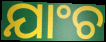
ଯାଂଚ